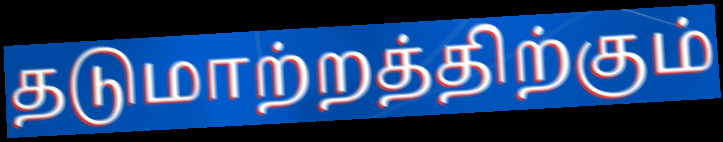
தடுமாற்றத்திற்கும்